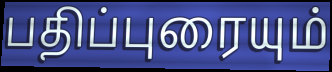
பதிப்புரையும்